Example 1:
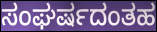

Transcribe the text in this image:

ಸಂಘರ್ಷದಂತಹ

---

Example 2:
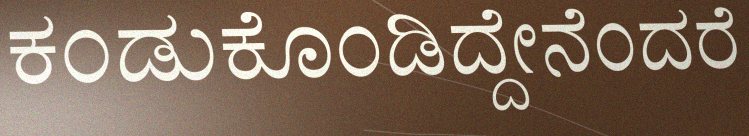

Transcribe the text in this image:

ಕಂಡುಕೊಂಡಿದ್ದೇನೆಂದರೆ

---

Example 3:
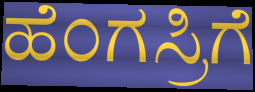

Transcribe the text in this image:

ಹೆಂಗಸ್ರಿಗೆ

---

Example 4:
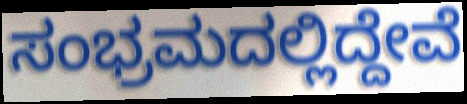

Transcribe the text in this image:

ಸಂಭ್ರಮದಲ್ಲಿದ್ದೇವೆ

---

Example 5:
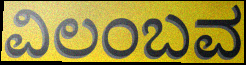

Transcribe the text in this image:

ವಿಲಂಬವ